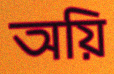
অয়ি